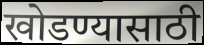
खोडण्यासाठी